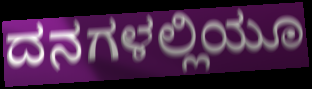
ದನಗಳಲ್ಲಿಯೂ